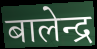
बालेन्द्र